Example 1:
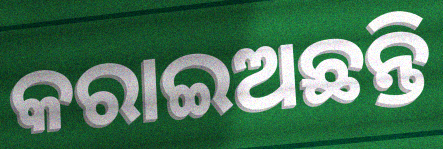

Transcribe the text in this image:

କରାଇଅଛନ୍ତି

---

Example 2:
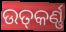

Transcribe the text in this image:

ଉତ୍‍କର୍ଣ୍ଣ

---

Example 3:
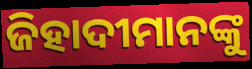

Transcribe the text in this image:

ଜିହାଦୀମାନଙ୍କୁ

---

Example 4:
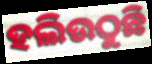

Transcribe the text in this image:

ହଲିଉଠୁଛି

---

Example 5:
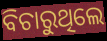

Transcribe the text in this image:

ବିଚାରୁଥିଲେ